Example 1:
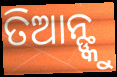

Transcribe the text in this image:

ତିଆନ୍ଙ୍କୁ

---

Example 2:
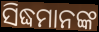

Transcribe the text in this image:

ସିଦ୍ଧମାନଙ୍କ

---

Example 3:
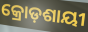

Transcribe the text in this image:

କ୍ରୋଡ଼ଶାୟୀ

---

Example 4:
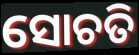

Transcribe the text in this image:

ସୋଚତି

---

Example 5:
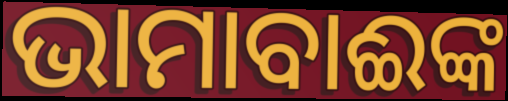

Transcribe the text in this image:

ଭାମାବାଈଙ୍କ